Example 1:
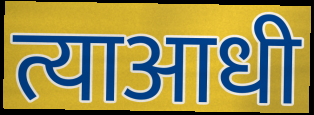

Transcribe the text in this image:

त्याआधी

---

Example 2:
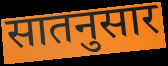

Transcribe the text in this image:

सातनुसार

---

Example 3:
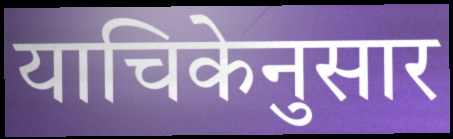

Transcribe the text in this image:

याचिकेनुसार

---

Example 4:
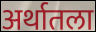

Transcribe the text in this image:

अर्थातला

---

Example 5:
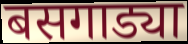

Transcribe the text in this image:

बसगाड्या